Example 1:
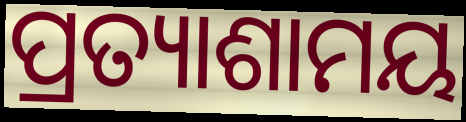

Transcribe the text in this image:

ପ୍ରତ୍ୟାଶାମୟ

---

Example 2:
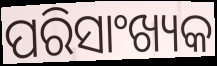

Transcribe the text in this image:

ପରିସାଂଖ୍ୟକ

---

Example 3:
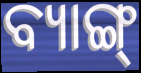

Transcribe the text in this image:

ବ୍ୟାଙ୍ଗ୍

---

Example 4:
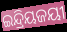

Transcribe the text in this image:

ଇନ୍ଦ୍ରିୟଜୟୀ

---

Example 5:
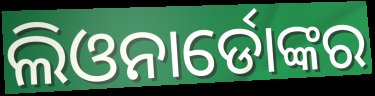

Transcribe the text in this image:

ଲିଓନାର୍ଡୋଙ୍କର